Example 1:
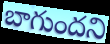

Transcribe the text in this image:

బాగుందని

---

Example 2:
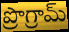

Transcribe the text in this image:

ప్రొగ్రామ్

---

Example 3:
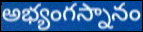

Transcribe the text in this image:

అభ్యంగస్నానం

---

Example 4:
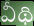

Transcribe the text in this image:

వీథి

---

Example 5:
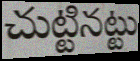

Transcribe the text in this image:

చుట్టినట్టు